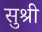
सुश्री